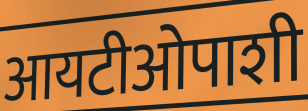
आयटीओपाशी